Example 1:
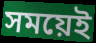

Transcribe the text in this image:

সময়েই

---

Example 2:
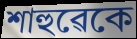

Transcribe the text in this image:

শাহুৱেকে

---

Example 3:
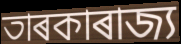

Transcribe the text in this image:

তাৰকাৰাজ্য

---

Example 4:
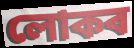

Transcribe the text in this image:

লোকৰ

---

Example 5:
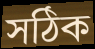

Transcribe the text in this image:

সঠিক